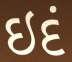
ઇદં